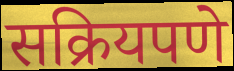
सक्रियपणे